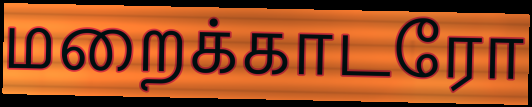
மறைக்காடரோ